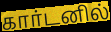
கார்டனில்